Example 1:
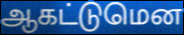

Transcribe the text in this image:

ஆகட்டுமென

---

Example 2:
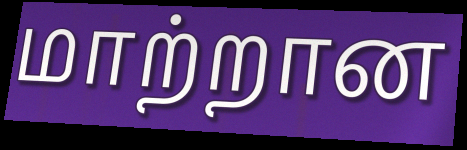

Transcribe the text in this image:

மாற்றான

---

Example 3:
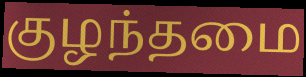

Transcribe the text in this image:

குழந்தமை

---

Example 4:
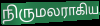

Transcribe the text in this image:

நிருமலராகிய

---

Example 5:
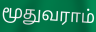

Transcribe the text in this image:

மூதுவராம்